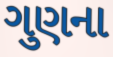
ગુણના